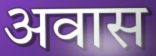
अवास